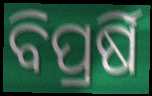
ବିପ୍ରର୍ଷି